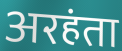
अरहंता